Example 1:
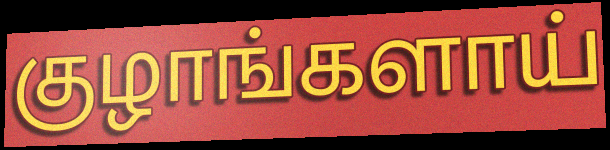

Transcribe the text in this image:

குழாங்களாய்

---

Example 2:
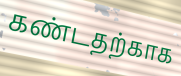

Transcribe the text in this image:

கண்டதற்காக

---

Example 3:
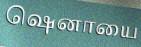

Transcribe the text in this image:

ஷெனாயை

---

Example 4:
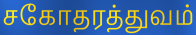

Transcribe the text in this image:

சகோதரத்துவம்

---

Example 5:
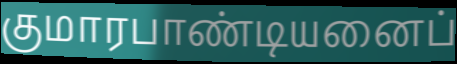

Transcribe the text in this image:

குமாரபாண்டியனைப்